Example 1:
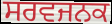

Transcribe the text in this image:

ਸਰਵਜਨਕ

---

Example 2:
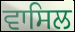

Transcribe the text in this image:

ਵਾਸਿਲ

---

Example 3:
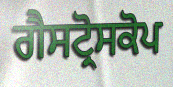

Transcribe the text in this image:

ਗੈਸਟ੍ਰੋਸਕੋਪ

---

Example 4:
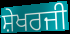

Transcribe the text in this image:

ਸ਼ੇਖਰਜੀ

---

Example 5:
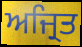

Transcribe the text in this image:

ਅਜ੍ਰਿਤ